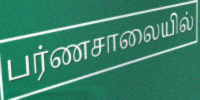
பர்ணசாலையில்